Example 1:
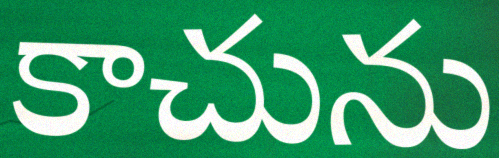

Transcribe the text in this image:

కాచును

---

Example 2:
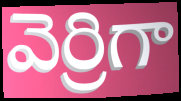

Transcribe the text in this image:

వెర్రిగా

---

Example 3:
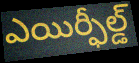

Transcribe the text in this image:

ఎయిర్ఫీల్డ్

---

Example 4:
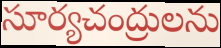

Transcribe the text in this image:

సూర్యచంద్రులను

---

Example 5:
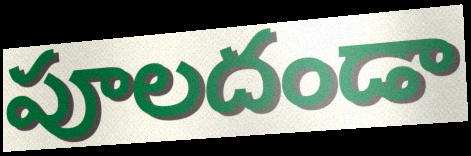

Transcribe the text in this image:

పూలదండా